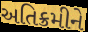
અતિક્રમીને